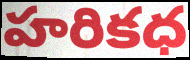
హరికధ